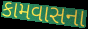
કામવાસના